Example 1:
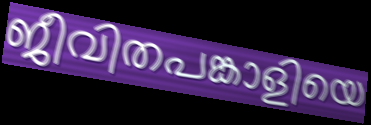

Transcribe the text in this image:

ജീവിതപങ്കാളിയെ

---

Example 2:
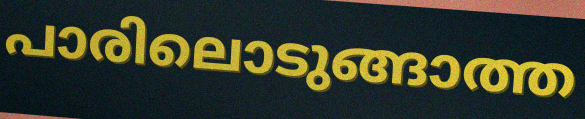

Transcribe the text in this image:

പാരിലൊടുങ്ങാത്ത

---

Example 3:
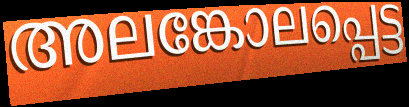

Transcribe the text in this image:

അലങ്കോലപ്പെട്ട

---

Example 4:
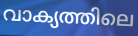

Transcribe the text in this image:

വാക്യത്തിലെ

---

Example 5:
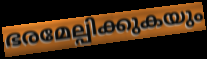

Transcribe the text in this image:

ഭരമേല്പിക്കുകയും